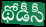
థోడీసీ